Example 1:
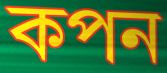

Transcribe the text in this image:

কপন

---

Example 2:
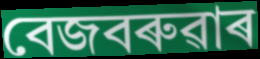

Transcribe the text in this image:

বেজবৰুৱাৰ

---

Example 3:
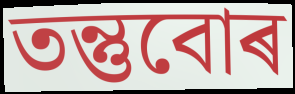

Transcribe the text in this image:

তন্তুবোৰ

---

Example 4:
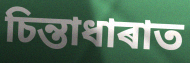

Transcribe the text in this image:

চিন্তাধাৰাত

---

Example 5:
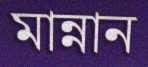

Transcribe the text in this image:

মান্নান